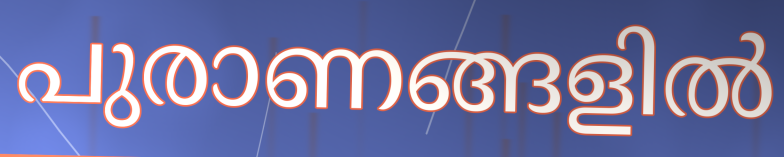
പുരാണങ്ങളിൽ